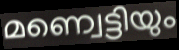
മണ്വെട്ടിയും